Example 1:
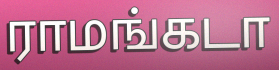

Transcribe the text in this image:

ராமங்கடா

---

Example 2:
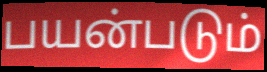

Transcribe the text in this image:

பயன்படும்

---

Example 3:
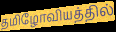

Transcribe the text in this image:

தமிழோவியத்தில்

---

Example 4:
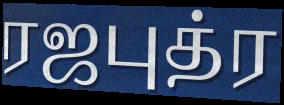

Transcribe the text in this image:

ரஜபுத்ர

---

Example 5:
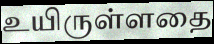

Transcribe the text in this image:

உயிருள்ளதை